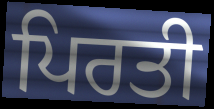
ਪਿਰਤੀ